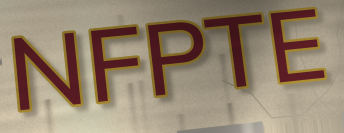
NFPTE